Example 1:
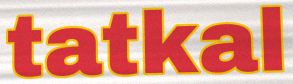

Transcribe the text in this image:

tatkal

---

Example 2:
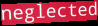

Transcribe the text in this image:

neglected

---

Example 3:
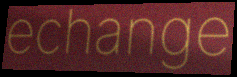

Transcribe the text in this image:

echange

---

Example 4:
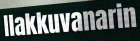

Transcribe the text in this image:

Ilakkuvanarin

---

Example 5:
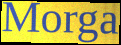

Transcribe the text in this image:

Morga